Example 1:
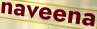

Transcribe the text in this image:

naveena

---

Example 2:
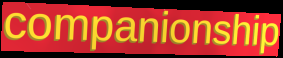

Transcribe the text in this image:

companionship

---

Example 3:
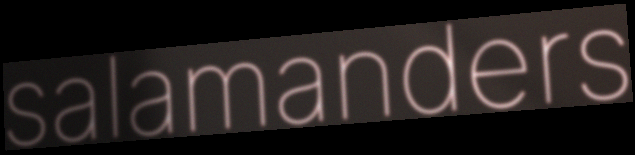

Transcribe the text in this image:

salamanders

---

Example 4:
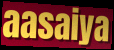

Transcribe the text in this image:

aasaiya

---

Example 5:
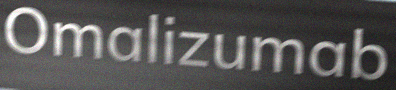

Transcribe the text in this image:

Omalizumab